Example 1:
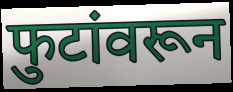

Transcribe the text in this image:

फुटांवरून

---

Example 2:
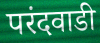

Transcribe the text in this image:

परंदवाडी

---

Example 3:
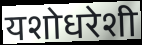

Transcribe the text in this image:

यशोधरेशी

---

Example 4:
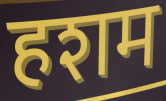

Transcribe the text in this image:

हशम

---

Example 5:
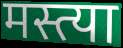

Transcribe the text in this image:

मस्त्या